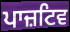
ਪਾਜ਼ਟਿਵ